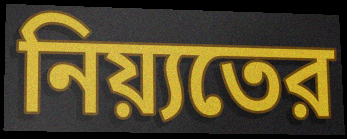
নিয়্যতের